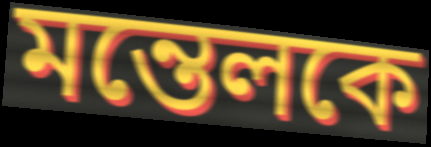
মন্তেলকে